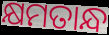
କ୍ଷମତାନ୍ଧ